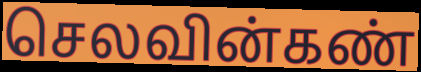
செலவின்கண்